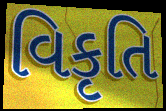
વિકૃતિ